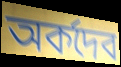
অর্কদেব